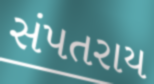
સંપતરાય